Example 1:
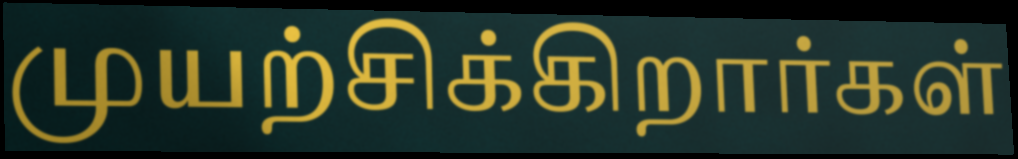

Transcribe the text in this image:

முயற்சிக்கிறார்கள்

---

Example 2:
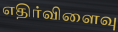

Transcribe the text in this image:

எதிர்விளைவு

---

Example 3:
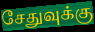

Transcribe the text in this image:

சேதுவுக்கு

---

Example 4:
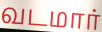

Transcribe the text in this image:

வடமார்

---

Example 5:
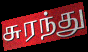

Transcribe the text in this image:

சுரந்து